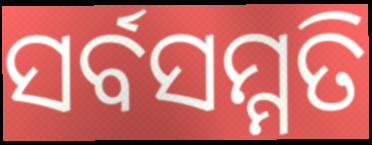
ସର୍ବସମ୍ମତି